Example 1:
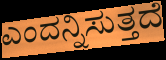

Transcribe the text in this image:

ಎಂದನ್ನಿಸುತ್ತದೆ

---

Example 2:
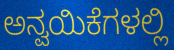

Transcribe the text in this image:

ಅನ್ವಯಿಕೆಗಳಲ್ಲಿ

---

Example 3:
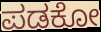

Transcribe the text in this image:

ಪಡಕೋ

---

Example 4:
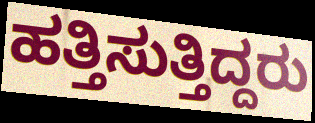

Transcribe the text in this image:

ಹತ್ತಿಸುತ್ತಿದ್ದರು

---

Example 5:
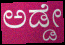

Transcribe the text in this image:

ಅಡ್ಡೇ